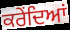
ਕਰੇਂਦਿਆਂ